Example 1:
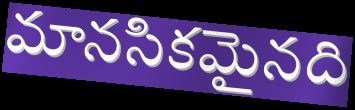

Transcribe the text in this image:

మానసికమైనది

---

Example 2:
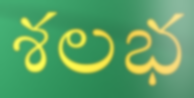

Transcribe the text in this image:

శలభ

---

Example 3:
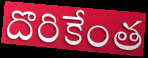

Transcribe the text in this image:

దొరికేంత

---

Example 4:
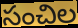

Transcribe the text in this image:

సంచిల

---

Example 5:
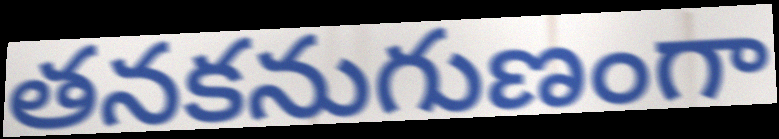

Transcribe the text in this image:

తనకనుగుణంగా